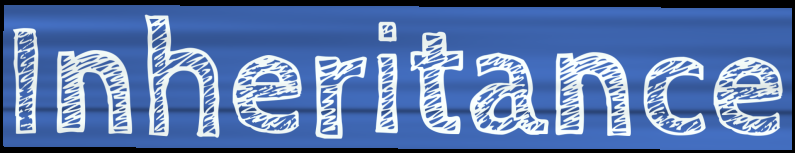
Inheritance